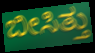
ಬೀಸಿತ್ತು